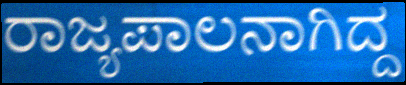
ರಾಜ್ಯಪಾಲನಾಗಿದ್ದ